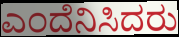
ಎಂದೆನಿಸಿದರು